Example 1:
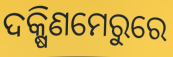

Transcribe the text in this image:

ଦକ୍ଷିଣମେରୁରେ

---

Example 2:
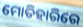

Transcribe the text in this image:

ମୋତିହାରିରେ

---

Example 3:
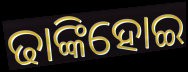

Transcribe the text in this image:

ଢାଙ୍କିହୋଇ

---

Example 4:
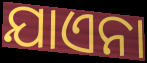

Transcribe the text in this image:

ଯାଏନା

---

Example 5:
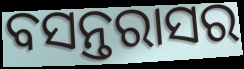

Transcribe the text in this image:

ବସନ୍ତରାସର